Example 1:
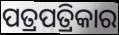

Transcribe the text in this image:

ପତ୍ରପତ୍ରିକାର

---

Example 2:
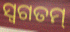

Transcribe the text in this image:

ସ୍ୱଗତମ୍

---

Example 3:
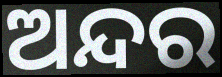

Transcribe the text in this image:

ଅନ୍ଦର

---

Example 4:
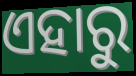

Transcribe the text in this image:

ଏହାରୁ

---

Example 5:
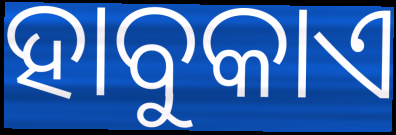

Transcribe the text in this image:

ହାବୁକାଏ